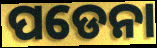
ପଡେନା